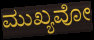
ಮುಖ್ಯವೋ